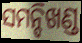
ସମନ୍ଦିଖଣ୍ଡ